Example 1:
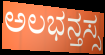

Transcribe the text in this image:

ಅಲಭನ್ತಸ್ಸ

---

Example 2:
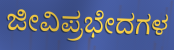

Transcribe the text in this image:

ಜೀವಿಪ್ರಭೇದಗಳ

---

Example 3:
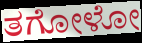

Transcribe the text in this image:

ತಗೋಳೋ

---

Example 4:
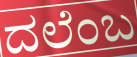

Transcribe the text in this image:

ದಲೆಂಬ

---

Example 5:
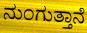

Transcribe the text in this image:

ನುಂಗುತ್ತಾನೆ